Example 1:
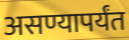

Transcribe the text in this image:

असण्यापर्यंत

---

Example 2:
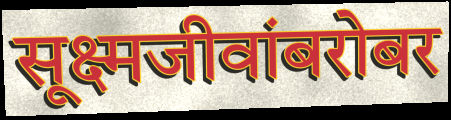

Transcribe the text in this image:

सूक्ष्मजीवांबरोबर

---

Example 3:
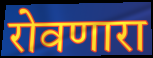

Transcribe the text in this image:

रोवणारा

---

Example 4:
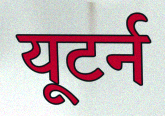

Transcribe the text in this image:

यूटर्न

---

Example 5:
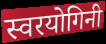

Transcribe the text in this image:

स्वरयोगिनी